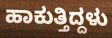
ಹಾಕುತ್ತಿದ್ದಳು